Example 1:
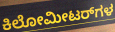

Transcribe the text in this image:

ಕಿಲೋಮೀಟರ್‌ಗಳ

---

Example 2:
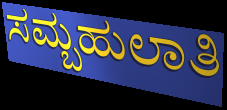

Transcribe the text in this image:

ಸಮ್ಬಹುಲಾತಿ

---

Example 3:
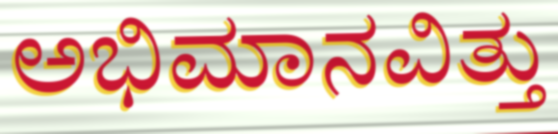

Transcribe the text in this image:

ಅಭಿಮಾನವಿತ್ತು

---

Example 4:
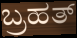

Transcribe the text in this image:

ಬ್ರಹತ್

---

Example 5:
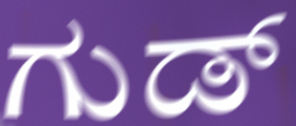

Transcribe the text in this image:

ಗುಡ್